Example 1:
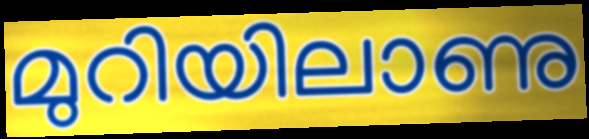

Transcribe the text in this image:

മുറിയിലാണു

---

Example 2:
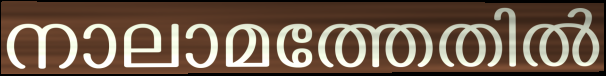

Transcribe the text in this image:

നാലാമത്തേതിൽ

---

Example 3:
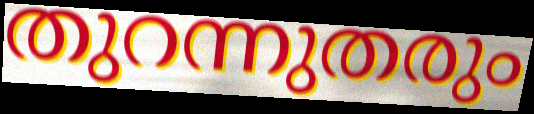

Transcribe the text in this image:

തുറന്നുതരും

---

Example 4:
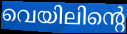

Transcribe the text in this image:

വെയിലിന്റെ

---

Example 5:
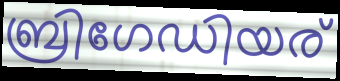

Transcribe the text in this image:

ബ്രിഗേഡിയര്